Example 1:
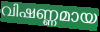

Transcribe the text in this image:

വിഷണ്ണമായ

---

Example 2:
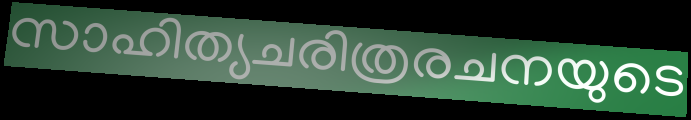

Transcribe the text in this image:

സാഹിത്യചരിത്രരചനയുടെ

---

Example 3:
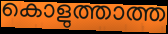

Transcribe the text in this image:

കൊളുത്താത്ത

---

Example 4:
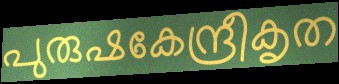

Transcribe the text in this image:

പുരുഷകേന്ദ്രീകൃത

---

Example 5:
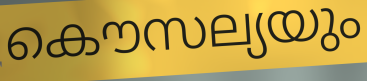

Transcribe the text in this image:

കൌസല്യയും